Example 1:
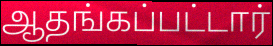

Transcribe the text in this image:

ஆதங்கப்பட்டார்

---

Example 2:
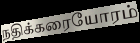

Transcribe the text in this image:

நதிக்கரையோரம்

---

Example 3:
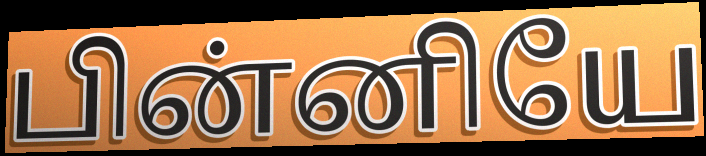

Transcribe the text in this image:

பின்னியே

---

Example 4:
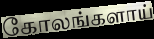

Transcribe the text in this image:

கோலங்களாய்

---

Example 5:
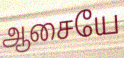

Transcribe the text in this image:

ஆசையே